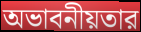
অভাবনীয়তার